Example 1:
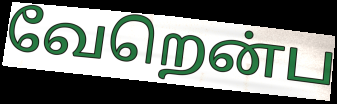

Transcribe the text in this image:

வேறென்ப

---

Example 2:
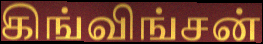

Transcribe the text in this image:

கிங்விங்சன்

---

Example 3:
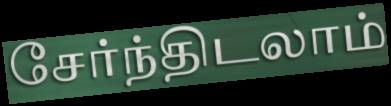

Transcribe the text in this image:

சேர்ந்திடலாம்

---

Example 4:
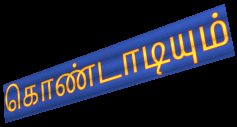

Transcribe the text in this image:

கொண்டாடியும்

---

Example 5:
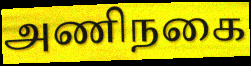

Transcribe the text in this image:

அணிநகை